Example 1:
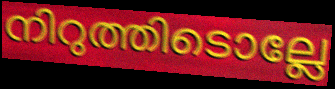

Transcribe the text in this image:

നിറുത്തിടൊല്ലേ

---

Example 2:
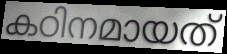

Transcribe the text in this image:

കഠിനമായത്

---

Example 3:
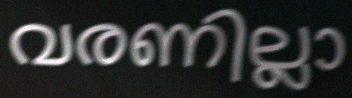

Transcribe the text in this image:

വരണില്ലാ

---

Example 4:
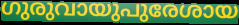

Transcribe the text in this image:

ഗുരുവായുപുരേശായ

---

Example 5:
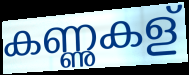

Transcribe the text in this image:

കണ്ണുകള്